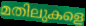
മതിലുകളെ